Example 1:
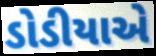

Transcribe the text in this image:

ડોડીયાએ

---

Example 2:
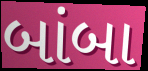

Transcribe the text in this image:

બાંબા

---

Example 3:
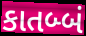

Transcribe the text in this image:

કાતબ્બં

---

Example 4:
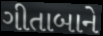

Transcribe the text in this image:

ગીતાબાને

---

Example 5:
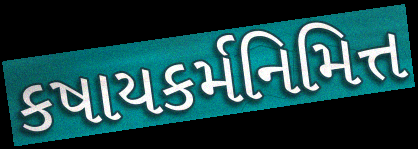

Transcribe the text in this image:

કષાયકર્મનિમિત્ત